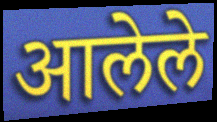
आलेले